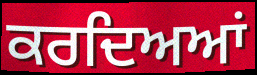
ਕਰਦਿਅਆਂ